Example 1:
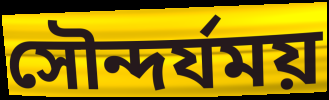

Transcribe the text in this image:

সৌন্দর্যময়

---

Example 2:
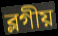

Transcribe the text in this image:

ব্লগীয়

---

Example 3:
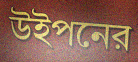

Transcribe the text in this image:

উইপনের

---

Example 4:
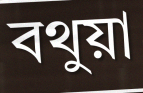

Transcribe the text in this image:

বথুয়া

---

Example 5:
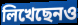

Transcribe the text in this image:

লিখেছেনও